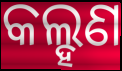
କଲ୍ହଣ